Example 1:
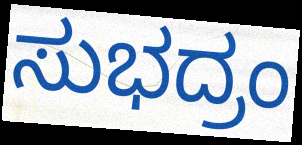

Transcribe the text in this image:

ಸುಭದ್ರಂ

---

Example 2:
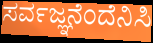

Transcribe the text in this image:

ಸರ್ವಜ್ಞನೆಂದೆನಿಸಿ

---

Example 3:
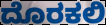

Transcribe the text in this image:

ದೊರಕಲಿ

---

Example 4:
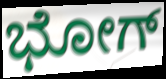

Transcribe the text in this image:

ಭೋಗ್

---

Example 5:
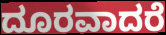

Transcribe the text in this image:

ದೂರವಾದರೆ